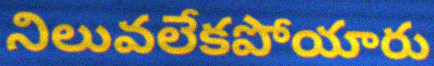
నిలువలేకపోయారు